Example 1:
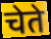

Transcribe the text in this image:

चेते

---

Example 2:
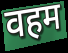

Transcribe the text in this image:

वहम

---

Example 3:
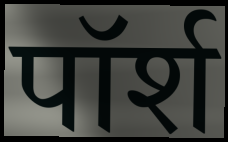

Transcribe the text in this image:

पॉर्श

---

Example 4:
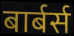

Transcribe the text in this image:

बार्बर्स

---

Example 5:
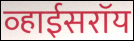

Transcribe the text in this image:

व्हाईसरॉय